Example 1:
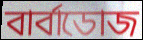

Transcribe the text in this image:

বার্বাডোজ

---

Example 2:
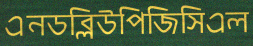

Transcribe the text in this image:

এনডব্লিউপিজিসিএল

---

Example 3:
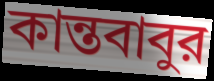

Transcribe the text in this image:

কান্তবাবুর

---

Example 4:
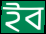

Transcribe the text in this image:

ইব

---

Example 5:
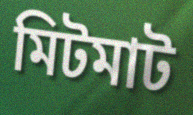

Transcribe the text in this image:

মিটমাট